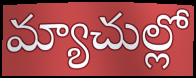
మ్యాచుల్లో